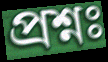
প্ৰশ্নঃ